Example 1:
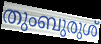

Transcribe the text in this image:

തുംബുരുശ്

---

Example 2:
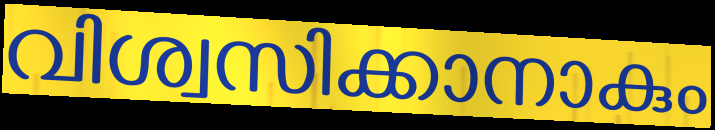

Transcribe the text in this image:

വിശ്വസിക്കാനാകും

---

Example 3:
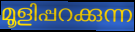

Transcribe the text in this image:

മൂളിപ്പറക്കുന്ന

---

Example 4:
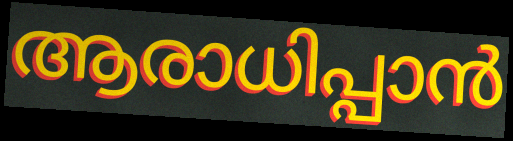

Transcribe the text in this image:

ആരാധിപ്പാൻ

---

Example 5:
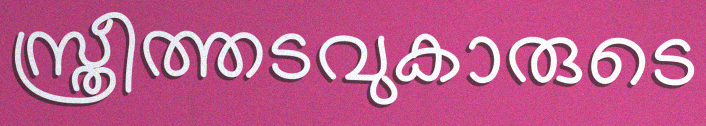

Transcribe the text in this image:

സ്ത്രീത്തടവുകാരുടെ